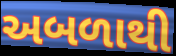
અબળાથી